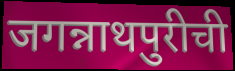
जगन्नाथपुरीची